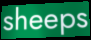
sheeps